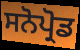
ਸਨੋਪ੍ਰੋਡ